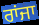
ਰਾਂਜਾ